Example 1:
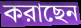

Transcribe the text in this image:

করাছেন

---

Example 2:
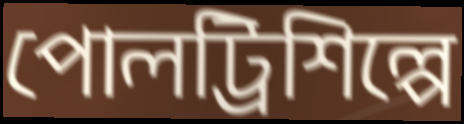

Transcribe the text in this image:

পোলট্রিশিল্পে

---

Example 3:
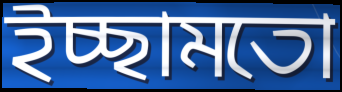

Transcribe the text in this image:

ইচ্ছামতো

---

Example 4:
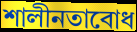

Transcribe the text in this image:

শালীনতাবোধ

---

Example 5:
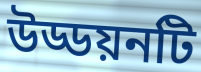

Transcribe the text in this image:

উড্ডয়নটি